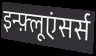
इन्फ़्लूएंसर्स